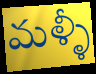
మళ్ళీ